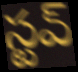
స్టవ్